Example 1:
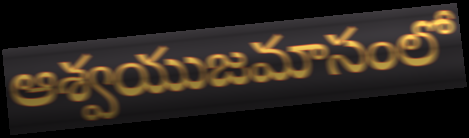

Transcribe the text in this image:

ఆశ్వయుజమాసంలో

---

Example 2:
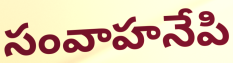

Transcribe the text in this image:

సంవాహనేపి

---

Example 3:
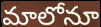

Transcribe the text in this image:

మాలోనూ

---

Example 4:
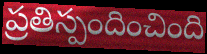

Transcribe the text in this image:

ప్రతిస్పందించింది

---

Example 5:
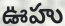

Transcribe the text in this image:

ఊహు